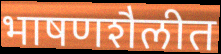
भाषणशैलीत